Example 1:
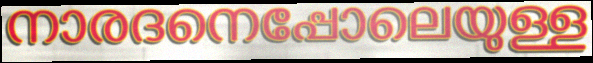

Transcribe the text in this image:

നാരദനെപ്പോലെയുള്ള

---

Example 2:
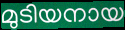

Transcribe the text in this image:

മുടിയനായ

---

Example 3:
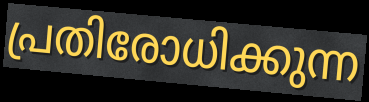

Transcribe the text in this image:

പ്രതിരോധിക്കുന്ന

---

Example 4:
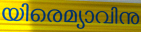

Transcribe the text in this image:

യിരെമ്യാവിനു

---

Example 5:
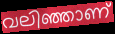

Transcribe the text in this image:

വലിഞ്ഞാണ്